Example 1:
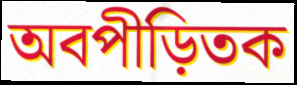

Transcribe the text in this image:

অবপীড়িতক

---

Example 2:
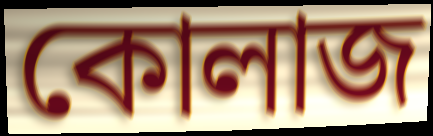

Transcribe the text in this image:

কোলাজ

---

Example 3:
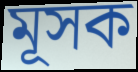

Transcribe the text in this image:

মূসক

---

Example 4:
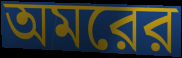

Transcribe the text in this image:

অমরের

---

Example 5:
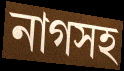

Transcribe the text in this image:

নাগসহ